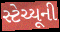
સ્ટેચ્યૂની